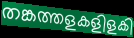
തങ്കത്തളകളിളകി